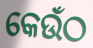
କେଉଁଠ